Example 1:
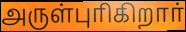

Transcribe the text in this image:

அருள்புரிகிறார்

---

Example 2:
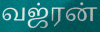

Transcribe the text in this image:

வஜ்ரன்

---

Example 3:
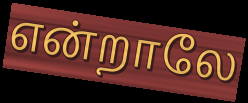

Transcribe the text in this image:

என்றாலே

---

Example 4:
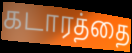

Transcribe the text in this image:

கடாரத்தை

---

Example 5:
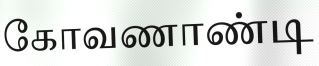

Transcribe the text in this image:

கோவணாண்டி